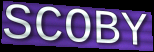
SCOBY